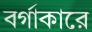
বর্গাকারে